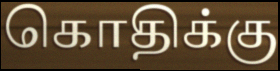
கொதிக்கு